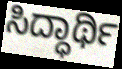
ಸಿದ್ಧಾರ್ಥಿ